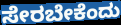
ಸೇರಬೇಕೆಂದು